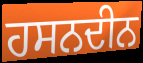
ਹਸਨਦੀਨ